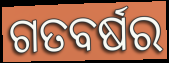
ଗତବର୍ଷର